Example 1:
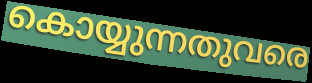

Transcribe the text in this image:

കൊയ്യുന്നതുവരെ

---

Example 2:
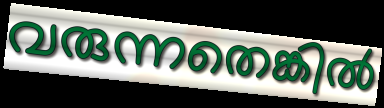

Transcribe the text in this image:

വരുന്നതെങ്കിൽ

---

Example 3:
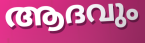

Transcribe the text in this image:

ആദവും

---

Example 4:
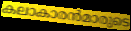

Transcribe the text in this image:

കലാകാരൻമാരുടെ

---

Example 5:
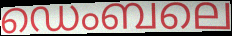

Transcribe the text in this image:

ഡെംബലെ